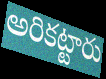
అరికట్టారు